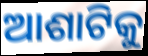
ଆଶାଟିକୁ